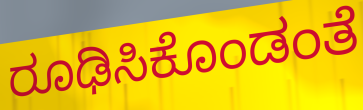
ರೂಢಿಸಿಕೊಂಡಂತೆ